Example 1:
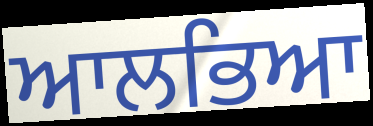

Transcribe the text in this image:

ਆਲਭਿਆ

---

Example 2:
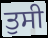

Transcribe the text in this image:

ਤੁਸੀ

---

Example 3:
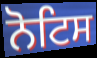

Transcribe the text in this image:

ਨੋਟਿਸ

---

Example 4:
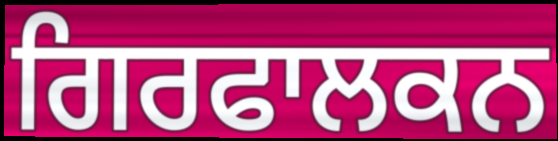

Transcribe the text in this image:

ਗਿਰਫਾਲਕਨ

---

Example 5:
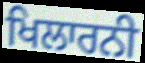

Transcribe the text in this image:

ਖਿਲਾਰਨੀ